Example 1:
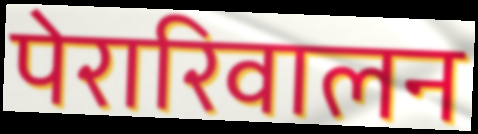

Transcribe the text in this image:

पेरारिवालन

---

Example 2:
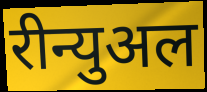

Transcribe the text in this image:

रीन्युअल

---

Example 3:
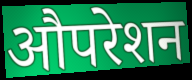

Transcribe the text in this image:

औपरेशन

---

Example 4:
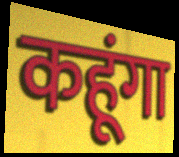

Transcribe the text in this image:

कहूंगा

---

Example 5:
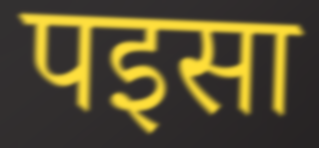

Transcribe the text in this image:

पइसा